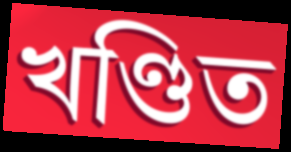
খণ্ডিত